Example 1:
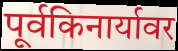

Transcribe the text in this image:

पूर्वकिनार्यावर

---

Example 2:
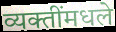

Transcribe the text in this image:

व्यक्तींमधले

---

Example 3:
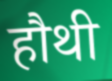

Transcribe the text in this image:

हौथी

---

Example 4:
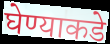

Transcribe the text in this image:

घेण्याकडे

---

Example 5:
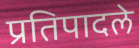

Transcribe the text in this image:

प्रतिपादले